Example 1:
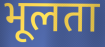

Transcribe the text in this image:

भूलता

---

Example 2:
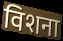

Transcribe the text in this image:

विशना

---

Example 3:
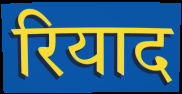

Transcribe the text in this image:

रियाद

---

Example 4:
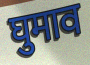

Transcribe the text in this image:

घुमाव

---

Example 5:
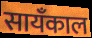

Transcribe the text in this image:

सायँकाल